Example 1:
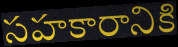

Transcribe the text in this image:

సహకారానికి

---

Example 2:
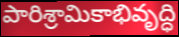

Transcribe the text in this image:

పారిశ్రామికాభివృద్ధి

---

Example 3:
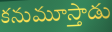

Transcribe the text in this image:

కనుమూస్తాడు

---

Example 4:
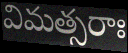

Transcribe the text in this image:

విమత్సరాః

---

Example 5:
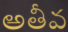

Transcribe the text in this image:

అతీవ